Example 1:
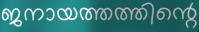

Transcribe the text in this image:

ജനായത്തത്തിന്റെ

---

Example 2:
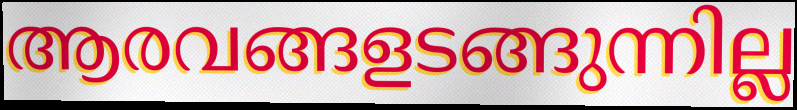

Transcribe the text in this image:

ആരവങ്ങളടങ്ങുന്നില്ല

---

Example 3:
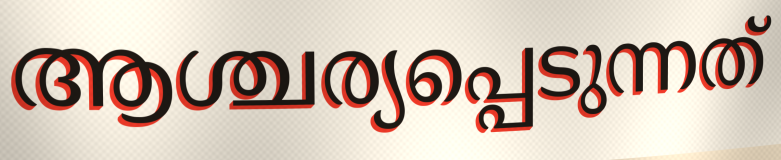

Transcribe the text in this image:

ആശ്ചര്യപ്പെടുന്നത്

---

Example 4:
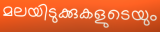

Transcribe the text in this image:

മലയിടുക്കുകളുടെയും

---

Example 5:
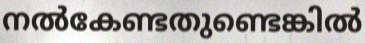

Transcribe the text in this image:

നൽകേണ്ടതുണ്ടെങ്കിൽ